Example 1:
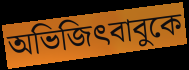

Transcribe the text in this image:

অভিজিৎবাবুকে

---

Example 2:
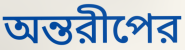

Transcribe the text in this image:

অন্তরীপের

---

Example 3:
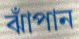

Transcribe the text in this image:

ঝাঁপান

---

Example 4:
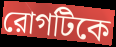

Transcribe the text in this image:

রোগটিকে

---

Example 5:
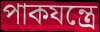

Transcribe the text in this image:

পাকযন্ত্রে